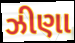
ઝીણા